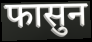
फासुन